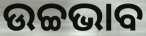
ଉଚ୍ଚଭାବ